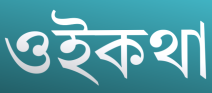
ওইকথা